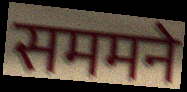
सममने